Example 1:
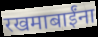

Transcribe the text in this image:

रखमाबाईंना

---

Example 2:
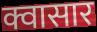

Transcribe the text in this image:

क्वासार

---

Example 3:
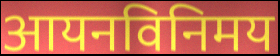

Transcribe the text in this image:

आयनविनिमय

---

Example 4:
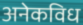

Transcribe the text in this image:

अनेकविध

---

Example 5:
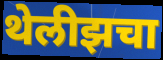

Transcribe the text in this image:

थेलीझचा